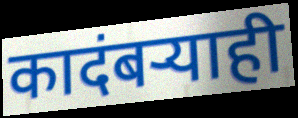
कादंबऱ्याही